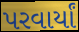
પરવાર્યાં